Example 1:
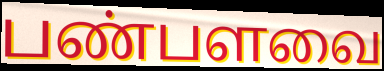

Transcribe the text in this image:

பண்பளவை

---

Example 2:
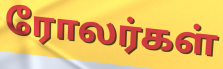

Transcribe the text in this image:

ரோலர்கள்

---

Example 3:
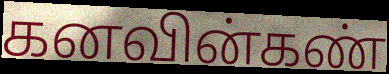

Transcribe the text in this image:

கனவின்கண்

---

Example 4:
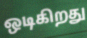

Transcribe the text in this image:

ஒடிகிறது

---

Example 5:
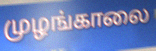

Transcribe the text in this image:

முழங்காலை